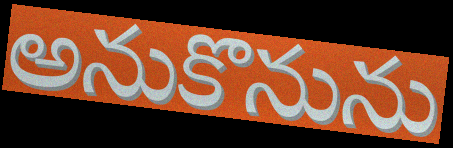
అనుకొనును